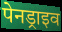
पेनड्राइव